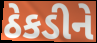
ઠેકડીને